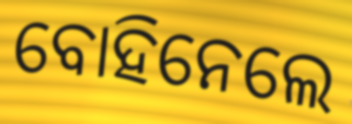
ବୋହିନେଲେ